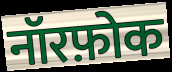
नॉरफ़ोक